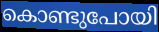
കൊണ്ടുപോയി